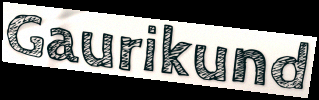
Gaurikund